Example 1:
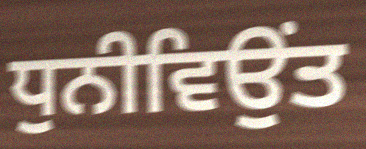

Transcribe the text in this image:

ਧੁਨੀਵਿਉਂਤ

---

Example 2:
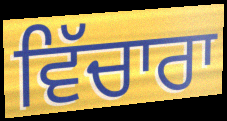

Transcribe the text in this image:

ਵਿੱਚਾਰਾ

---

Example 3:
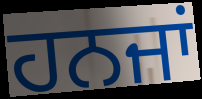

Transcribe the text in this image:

ਹਨਜਾਂ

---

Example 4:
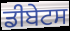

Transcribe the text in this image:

ਡੀਬੇਟਸ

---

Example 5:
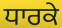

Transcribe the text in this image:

ਧਾਰਕੇ